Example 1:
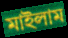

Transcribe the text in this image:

মাইলাম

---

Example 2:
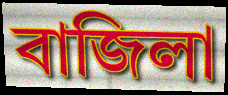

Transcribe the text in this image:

বাজিলা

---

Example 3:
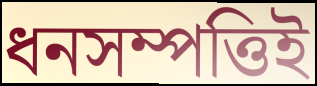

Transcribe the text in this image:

ধনসম্পত্তিই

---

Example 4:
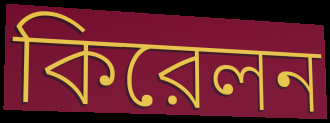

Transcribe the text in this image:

কিরেলন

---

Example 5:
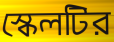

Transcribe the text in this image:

স্কেলটির